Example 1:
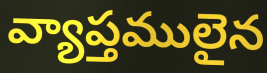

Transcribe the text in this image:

వ్యాప్తములైన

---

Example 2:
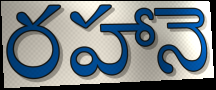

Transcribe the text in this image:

రహానె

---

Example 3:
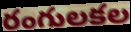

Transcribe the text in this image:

రంగులకల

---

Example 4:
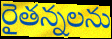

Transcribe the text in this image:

రైతన్నలను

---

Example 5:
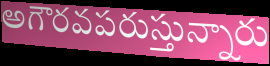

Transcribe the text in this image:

అగౌరవపరుస్తున్నారు